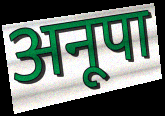
अनूपा